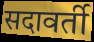
सदावर्ती